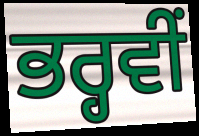
ਭਰ੍ਹਵੀਂ